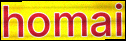
homai